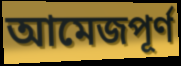
আমেজপূর্ণ